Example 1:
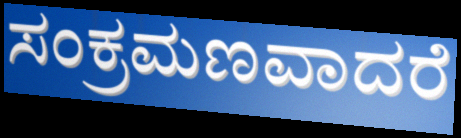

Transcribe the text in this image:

ಸಂಕ್ರಮಣವಾದರೆ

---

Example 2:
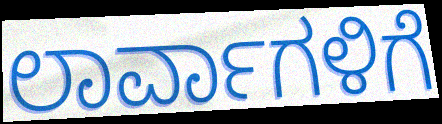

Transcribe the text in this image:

ಲಾರ್ವಾಗಳಿಗೆ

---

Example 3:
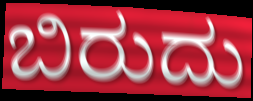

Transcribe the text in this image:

ಬಿರುದು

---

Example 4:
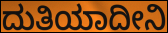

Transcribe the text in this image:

ದುತಿಯಾದೀನಿ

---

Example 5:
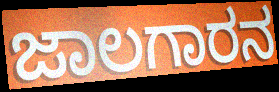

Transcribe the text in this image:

ಜಾಲಗಾರನ